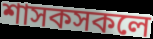
শাসকসকলে